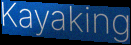
Kayaking